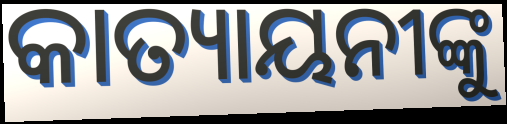
କାତ୍ୟାୟନୀଙ୍କୁ